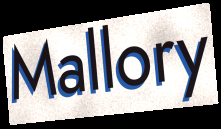
Mallory